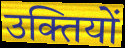
उक्तियों